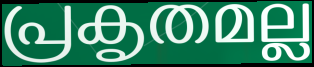
പ്രകൃതമല്ല